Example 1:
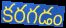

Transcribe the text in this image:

కరగడం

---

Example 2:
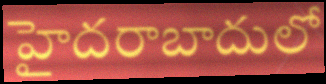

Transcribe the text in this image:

హైదరాబాదులో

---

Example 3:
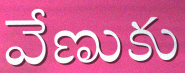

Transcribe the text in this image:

వేణుకు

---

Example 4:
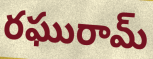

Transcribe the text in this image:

రఘురామ్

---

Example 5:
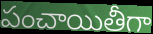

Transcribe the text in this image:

పంచాయితీగా